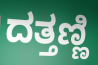
ದತ್ತಣ್ಣಿ